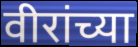
वीरांच्या